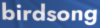
birdsong